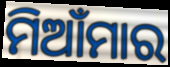
ମିଆଁମାର